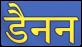
डैनन